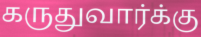
கருதுவார்க்கு